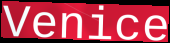
Venice